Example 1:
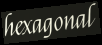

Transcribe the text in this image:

hexagonal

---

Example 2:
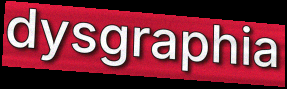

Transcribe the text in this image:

dysgraphia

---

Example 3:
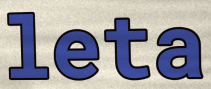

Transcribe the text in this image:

leta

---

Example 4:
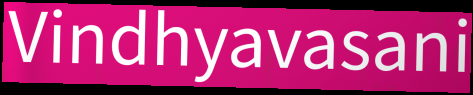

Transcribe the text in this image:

Vindhyavasani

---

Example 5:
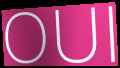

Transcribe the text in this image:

OUI